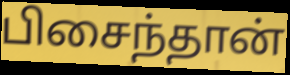
பிசைந்தான்